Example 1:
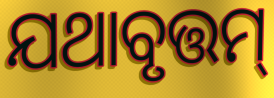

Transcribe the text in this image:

ଯଥାବୃତ୍ତମ୍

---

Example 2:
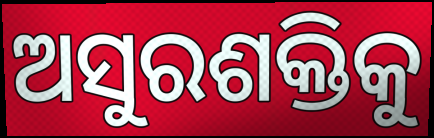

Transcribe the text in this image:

ଅସୁରଶକ୍ତିକୁ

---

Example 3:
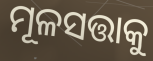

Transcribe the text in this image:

ମୂଳସତ୍ତାକୁ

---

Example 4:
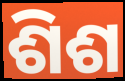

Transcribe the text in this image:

ଶିଶ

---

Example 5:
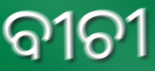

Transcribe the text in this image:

ବୀଚୀ